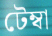
টেম্বা